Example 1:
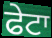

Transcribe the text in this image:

ਫੇਟਾ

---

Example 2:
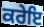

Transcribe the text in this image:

ਕਰੇਇ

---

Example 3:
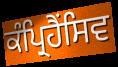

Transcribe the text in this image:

ਕੰਪ੍ਰਿਹੈਂਸਿਵ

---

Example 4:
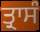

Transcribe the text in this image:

ਤ੍ਰਾਸੰ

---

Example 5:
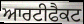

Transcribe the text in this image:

ਆਰਟੀਫੈਕਟ